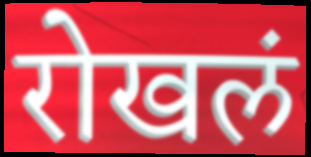
रोखलं